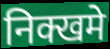
निक्खमे